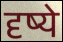
दृष्ये